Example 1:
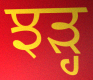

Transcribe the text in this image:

ਝੜ੍ਹ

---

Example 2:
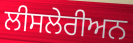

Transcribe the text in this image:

ਲੀਸਲੇਰੀਅਨ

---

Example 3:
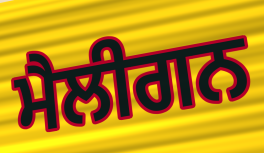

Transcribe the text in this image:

ਮੈਲੀਗਨ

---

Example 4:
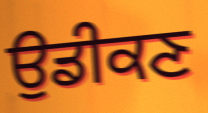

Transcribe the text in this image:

ਉਡੀਕਣ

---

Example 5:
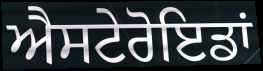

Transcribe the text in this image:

ਐਸਟੇਰੋਇਡਾਂ